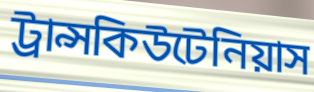
ট্রান্সকিউটেনিয়াস